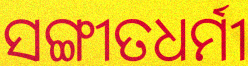
ସଙ୍ଗୀତଧର୍ମୀ